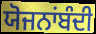
ਯੋਜਨਾਂਬੰਦੀ